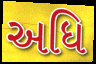
અધિ